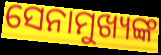
ସେନାମୁଖ୍ୟଙ୍କ